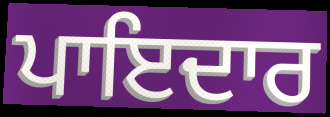
ਪਾਇਦਾਰ